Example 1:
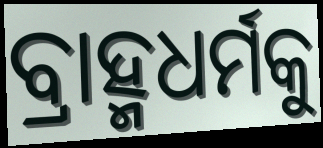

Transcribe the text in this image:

ବ୍ରାହ୍ମଧର୍ମକୁ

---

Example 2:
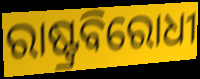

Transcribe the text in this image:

ରାଷ୍ଟ୍ରବିରୋଧୀ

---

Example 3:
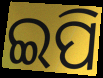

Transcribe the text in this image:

ଇପି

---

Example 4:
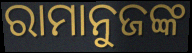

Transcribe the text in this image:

ରାମାନୁଜଙ୍କ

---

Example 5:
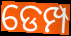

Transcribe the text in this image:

ଡେମ୍ପ